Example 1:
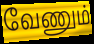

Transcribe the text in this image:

வேணும்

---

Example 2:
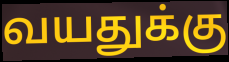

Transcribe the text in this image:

வயதுக்கு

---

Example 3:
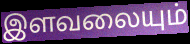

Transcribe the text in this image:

இளவலையும்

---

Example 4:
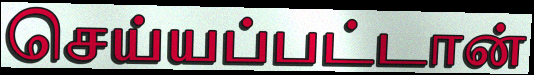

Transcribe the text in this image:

செய்யப்பட்டான்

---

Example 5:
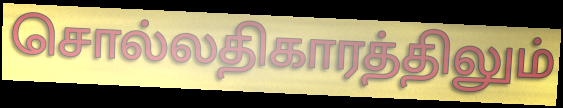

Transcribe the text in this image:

சொல்லதிகாரத்திலும்